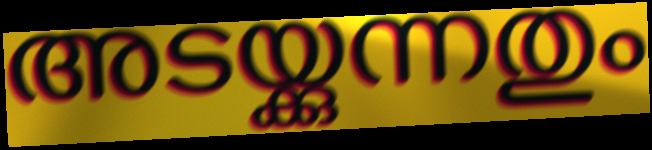
അടയ്ക്കുന്നതും